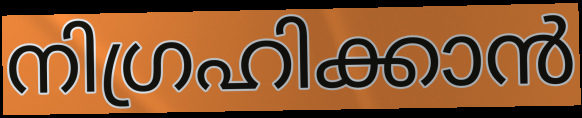
നിഗ്രഹിക്കാൻ